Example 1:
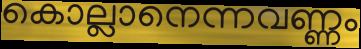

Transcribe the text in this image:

കൊല്ലാനെന്നവണ്ണം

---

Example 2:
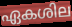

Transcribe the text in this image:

ഏകശില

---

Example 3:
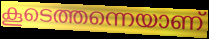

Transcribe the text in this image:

കൂടെത്തന്നെയാണ്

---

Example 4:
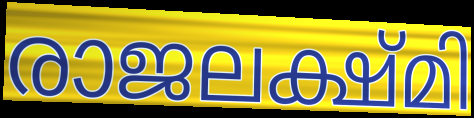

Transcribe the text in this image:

രാജലക്ഷ്മി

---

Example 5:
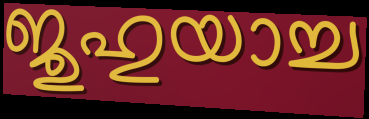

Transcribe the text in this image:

ജുഹുയാച്ച